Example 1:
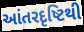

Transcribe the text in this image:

આંતરદૃષ્ટિથી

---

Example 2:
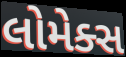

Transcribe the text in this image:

લોમેક્સ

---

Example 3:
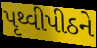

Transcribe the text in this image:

પૃથ્વીપીઠને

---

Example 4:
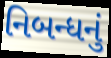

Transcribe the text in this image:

નિબન્ધનું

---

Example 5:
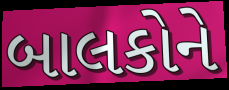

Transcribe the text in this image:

બાલકોને